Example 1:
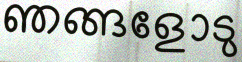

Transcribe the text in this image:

ഞങ്ങളോടു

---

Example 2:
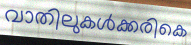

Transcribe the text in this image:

വാതിലുകൾക്കരികെ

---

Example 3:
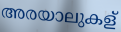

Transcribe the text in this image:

അരയാലുകള്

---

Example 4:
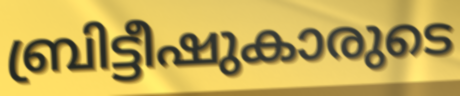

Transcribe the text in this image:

ബ്രിട്ടീഷുകാരുടെ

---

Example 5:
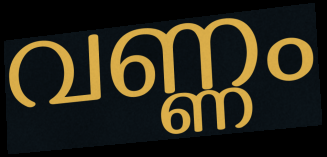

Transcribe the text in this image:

വണ്ണം